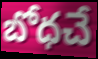
బోధచే